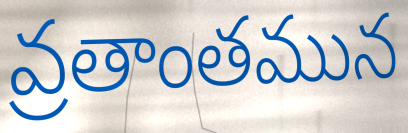
వ్రతాంతమున